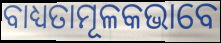
ବାଧ୍ୟତାମୂଳକଭାବେ